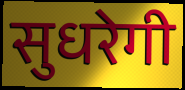
सुधरेगी